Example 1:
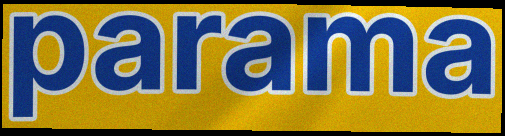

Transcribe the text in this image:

parama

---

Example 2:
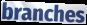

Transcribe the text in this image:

branches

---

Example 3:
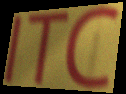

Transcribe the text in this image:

ITC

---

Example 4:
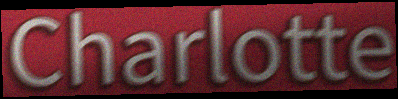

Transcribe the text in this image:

Charlotte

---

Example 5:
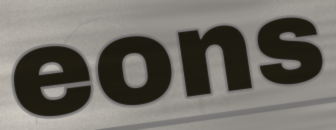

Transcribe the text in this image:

eons